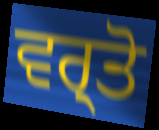
ਵਰ੍ਤੋ